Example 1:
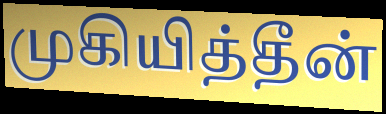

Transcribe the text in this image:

முகியித்தீன்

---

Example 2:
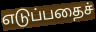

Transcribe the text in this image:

எடுப்பதைச்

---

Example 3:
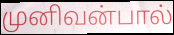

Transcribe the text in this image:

முனிவன்பால்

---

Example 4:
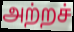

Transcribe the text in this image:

அற்றச்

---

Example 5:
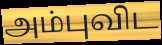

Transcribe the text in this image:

அம்புவிட